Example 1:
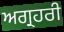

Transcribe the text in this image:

ਅਗ੍ਰਹਰੀ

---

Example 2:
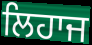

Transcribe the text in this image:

ਲਿਹਾਜ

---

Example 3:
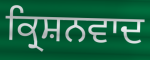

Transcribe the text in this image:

ਕ੍ਰਿਸ਼ਨਵਾਦ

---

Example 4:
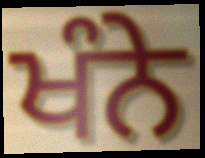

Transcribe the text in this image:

ਖੰਨੇ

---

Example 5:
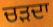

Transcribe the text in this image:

ਚੜਦਾ